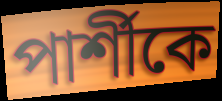
পার্শীকে